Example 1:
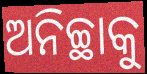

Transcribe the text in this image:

ଅନିଚ୍ଛାକୁ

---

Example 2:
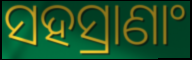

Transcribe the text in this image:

ସହସ୍ରାଣାଂ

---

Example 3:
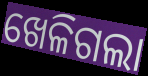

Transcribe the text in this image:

ଖେଳିଗଲା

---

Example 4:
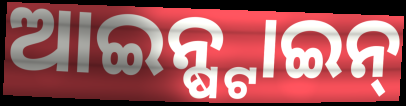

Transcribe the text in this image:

ଆଇନ୍ଷ୍ଟାଇନ୍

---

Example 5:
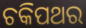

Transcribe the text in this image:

ଚକିପଥର